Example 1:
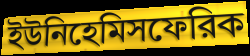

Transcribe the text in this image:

ইউনিহেমিসফেরিক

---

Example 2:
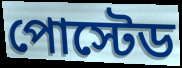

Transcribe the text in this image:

পোস্টেড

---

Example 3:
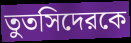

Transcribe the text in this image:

তুতসিদেরকে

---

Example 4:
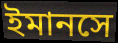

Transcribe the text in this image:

ইমানসে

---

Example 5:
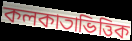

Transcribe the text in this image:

কলকাতাভিত্তিক